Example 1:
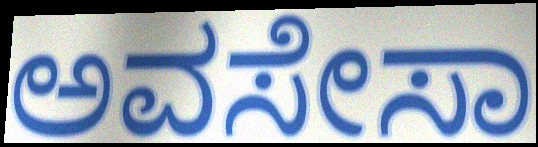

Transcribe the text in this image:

ಅವಸೇಸಾ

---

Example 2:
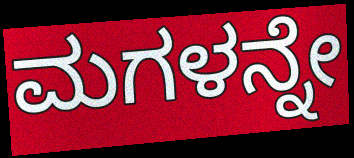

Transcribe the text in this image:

ಮಗಳನ್ನೇ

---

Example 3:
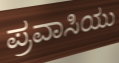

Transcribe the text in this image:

ಪ್ರವಾಸಿಯು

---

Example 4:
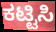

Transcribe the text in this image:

ಕಟ್ಟಿಸಿ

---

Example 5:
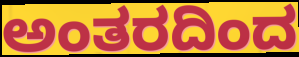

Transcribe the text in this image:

ಅಂತರದಿಂದ